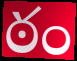
ఠం